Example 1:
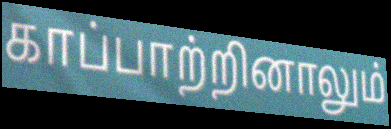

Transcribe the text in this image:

காப்பாற்றினாலும்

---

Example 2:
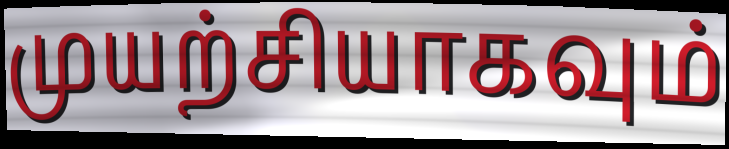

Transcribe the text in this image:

முயற்சியாகவும்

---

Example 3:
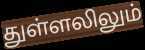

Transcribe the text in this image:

துள்ளலிலும்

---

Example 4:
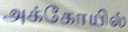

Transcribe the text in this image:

அக்கோயில்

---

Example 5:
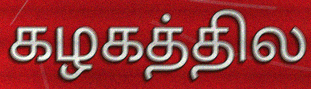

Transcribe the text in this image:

கழகத்தில